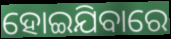
ହୋଇଯିବାରେ